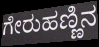
ಗೇರುಹಣ್ಣಿನ